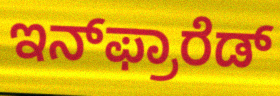
ಇನ್‌ಫ್ರಾರೆಡ್